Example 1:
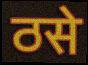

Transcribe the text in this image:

ठसे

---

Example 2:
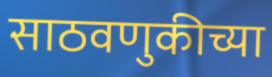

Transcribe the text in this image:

साठवणुकीच्या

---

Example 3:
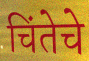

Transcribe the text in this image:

चिंतेचे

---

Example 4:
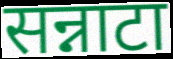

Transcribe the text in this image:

सन्नाटा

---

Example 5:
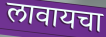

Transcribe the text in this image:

लावायचा